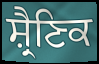
ਸ਼੍ਰੈਣਿਕ